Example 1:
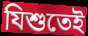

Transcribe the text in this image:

যিশুতেই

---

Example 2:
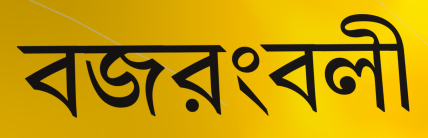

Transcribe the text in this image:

বজরংবলী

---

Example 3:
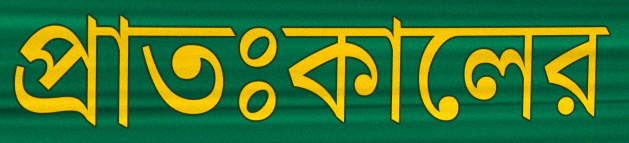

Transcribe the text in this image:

প্রাতঃকালের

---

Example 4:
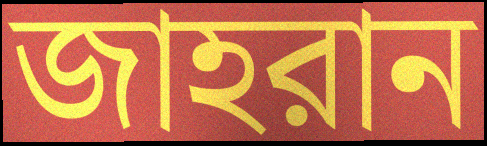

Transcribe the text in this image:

জাহরান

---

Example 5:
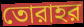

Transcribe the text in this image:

তোরাহর